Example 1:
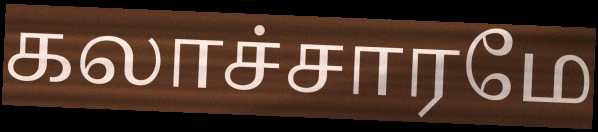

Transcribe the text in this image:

கலாச்சாரமே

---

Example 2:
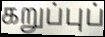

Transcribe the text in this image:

கறுப்புப்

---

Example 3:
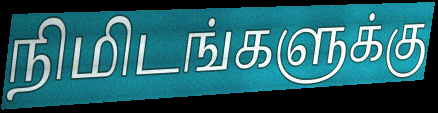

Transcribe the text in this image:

நிமிடங்களுக்கு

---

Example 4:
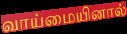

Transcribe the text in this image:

வாய்மையினால்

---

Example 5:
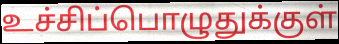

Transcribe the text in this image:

உச்சிப்பொழுதுக்குள்